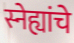
स्नेह्यांचे